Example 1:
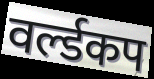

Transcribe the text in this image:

वर्ल्‍डकप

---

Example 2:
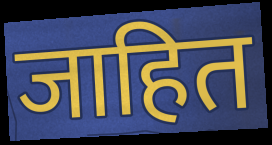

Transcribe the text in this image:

जाहित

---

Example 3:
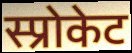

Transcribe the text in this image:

स्प्रोकेट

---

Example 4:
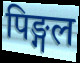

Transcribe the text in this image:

पिङ्गल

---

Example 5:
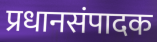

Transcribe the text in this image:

प्रधानसंपादक